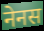
नेनस